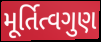
મૂર્તિત્વગુણ